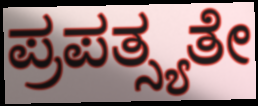
ಪ್ರಪತ್ಸ್ಯತೇ